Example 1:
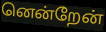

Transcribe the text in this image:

னென்றேன்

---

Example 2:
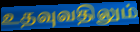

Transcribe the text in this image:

உதவுவதிலும்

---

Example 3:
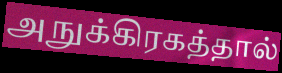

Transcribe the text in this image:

அநுக்கிரகத்தால்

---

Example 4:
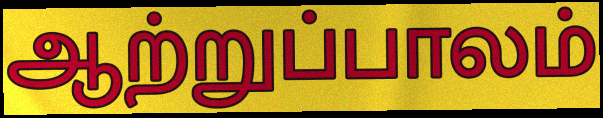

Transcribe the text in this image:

ஆற்றுப்பாலம்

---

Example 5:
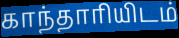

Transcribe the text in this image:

காந்தாரியிடம்